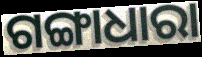
ଗଙ୍ଗାଧାରା